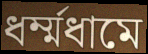
ধর্ম্মধামে